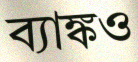
ব্যাঙ্কও